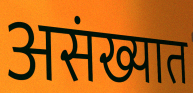
असंख्यात